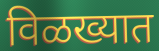
विळख्यात